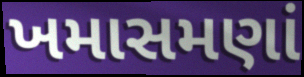
ખમાસમણાં